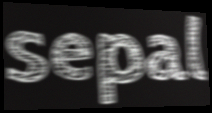
sepal